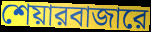
শেয়ারবাজারে